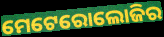
ମେଟେରୋଲୋଜିର